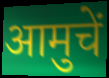
आमुचें